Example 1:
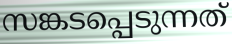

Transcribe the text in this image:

സങ്കടപ്പെടുന്നത്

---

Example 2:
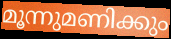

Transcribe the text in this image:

മൂന്നുമണിക്കും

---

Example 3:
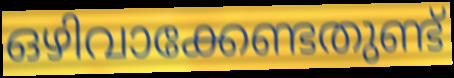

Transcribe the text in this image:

ഒഴിവാക്കേണ്ടതുണ്ട്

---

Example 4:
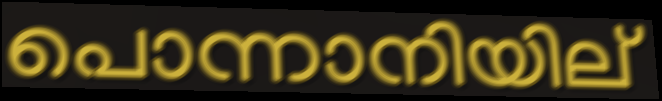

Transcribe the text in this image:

പൊന്നാനിയില്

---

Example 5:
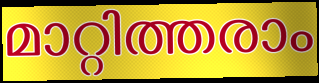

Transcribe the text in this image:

മാറ്റിത്തരാം